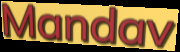
Mandav